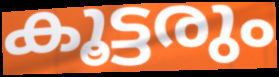
കൂട്ടരും